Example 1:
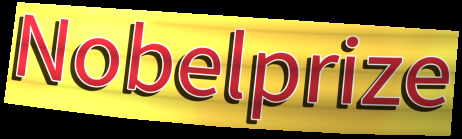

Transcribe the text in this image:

Nobelprize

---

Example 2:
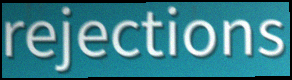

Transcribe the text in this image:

rejections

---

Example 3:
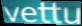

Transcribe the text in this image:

vettu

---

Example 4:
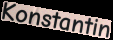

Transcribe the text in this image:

Konstantin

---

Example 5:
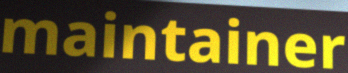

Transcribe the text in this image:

maintainer